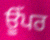
ਊੱਪਰ